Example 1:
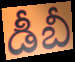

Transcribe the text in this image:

డీబీ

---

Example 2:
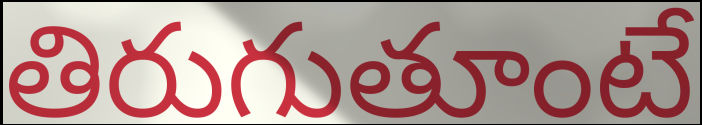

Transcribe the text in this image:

తిరుగుతూంటే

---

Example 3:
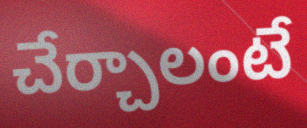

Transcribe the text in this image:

చేర్చాలంటే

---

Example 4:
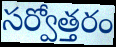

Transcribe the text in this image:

సర్వోత్తరం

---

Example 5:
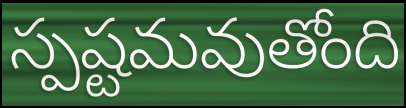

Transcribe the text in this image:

స్పష్టమవుతోంది